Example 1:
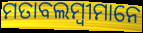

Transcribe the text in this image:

ମତାବଲମ୍ବୀମାନେ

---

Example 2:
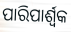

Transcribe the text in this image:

ପାରିପାର୍ଶ୍ବକ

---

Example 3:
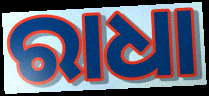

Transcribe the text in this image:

ରାଧା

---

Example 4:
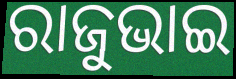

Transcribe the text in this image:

ରାଜୁଭାଇ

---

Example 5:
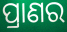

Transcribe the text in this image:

ପ୍ରାଣର